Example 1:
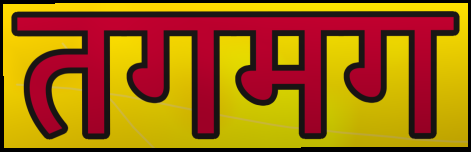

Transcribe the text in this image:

तगमग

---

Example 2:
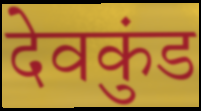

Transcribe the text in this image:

देवकुंड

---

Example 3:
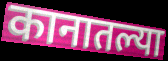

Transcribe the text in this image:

कानातल्या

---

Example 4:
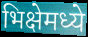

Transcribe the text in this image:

भिक्षेमध्ये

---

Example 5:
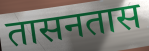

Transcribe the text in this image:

तासनतास